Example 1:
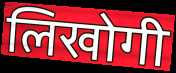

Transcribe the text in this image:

लिखोगी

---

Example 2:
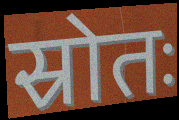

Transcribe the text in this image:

स्रोतः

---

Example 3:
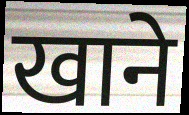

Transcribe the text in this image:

खाने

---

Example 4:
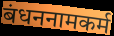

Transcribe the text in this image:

बंधननामकर्म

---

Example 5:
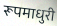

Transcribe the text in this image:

रूपमाधुरी